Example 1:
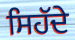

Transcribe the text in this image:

ਸਿਹੱਦੇ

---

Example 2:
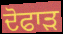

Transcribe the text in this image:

ਦੋਫਾੜ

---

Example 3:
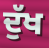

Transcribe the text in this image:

ਦੁੱਖ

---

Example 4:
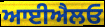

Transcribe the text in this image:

ਆਈਐਲਓ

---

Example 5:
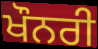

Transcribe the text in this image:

ਖੌਨਰੀ